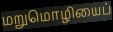
மறுமொழியைப்